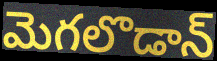
మెగలొడాన్